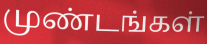
முண்டங்கள்